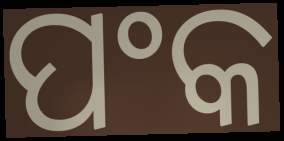
ପଂକ